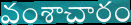
వంశాచారం